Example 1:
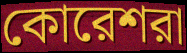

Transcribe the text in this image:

কোরেশরা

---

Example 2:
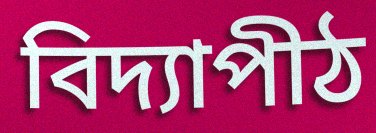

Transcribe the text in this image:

বিদ্যাপীঠ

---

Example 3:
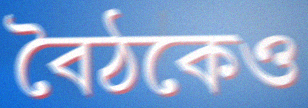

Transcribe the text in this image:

বৈঠকেও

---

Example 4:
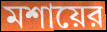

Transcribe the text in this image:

মশায়ের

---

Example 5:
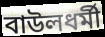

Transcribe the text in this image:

বাউলধর্মী